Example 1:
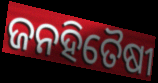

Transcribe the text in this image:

ଜନହିତୈଷୀ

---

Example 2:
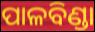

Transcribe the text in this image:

ପାଳବିଣ୍ଡା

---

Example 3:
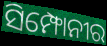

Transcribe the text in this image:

ସିମ୍ଫୋନୀର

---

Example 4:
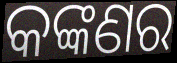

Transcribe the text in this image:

କଙ୍କଣର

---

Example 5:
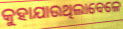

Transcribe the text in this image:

କୁହାଯାଉଥିଲାବେଳେ